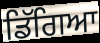
ਡਿੱਗਿਆ